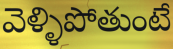
వెళ్ళిపోతుంటే